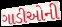
ગાડીઓની